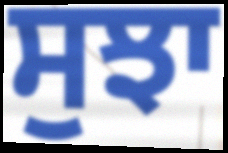
ਸੁਝਾ